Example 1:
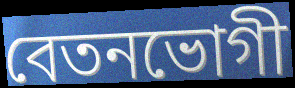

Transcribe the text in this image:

বেতনভোগী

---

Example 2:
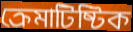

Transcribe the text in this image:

ক্রেমাটিষ্টিক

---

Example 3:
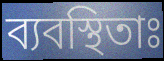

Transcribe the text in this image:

ব্যবস্থিতাঃ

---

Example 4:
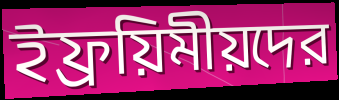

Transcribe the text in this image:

ইফ্রয়িমীয়দের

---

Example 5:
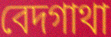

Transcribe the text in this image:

বেদগাথা